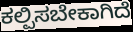
ಕಲ್ಪಿಸಬೇಕಾಗಿದೆ